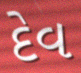
દેવ